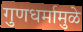
गुणधर्मामुळे